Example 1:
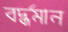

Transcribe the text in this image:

বর্দ্ধমান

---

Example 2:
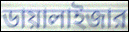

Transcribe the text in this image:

ডায়ালাইজার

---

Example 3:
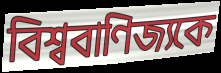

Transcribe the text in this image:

বিশ্ববাণিজ্যকে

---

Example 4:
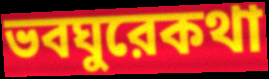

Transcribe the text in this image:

ভবঘুরেকথা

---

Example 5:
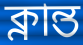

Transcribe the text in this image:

ক্নান্ত